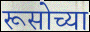
रूसोच्या